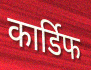
कार्डिफ